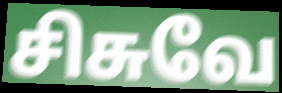
சிசுவே